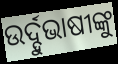
ଉର୍ଦ୍ଦୁଭାଷୀଙ୍କୁ